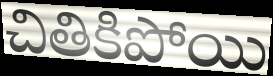
చితికిపోయి